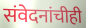
संवेदनांचीही